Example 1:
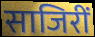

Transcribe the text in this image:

साजिरीं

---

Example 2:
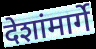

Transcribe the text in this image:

देशांमार्गे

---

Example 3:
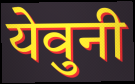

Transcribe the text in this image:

येवुनी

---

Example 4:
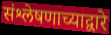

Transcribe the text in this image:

संश्लेषणाच्याद्वारे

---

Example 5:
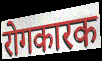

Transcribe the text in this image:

रोगकारक